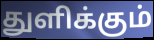
துளிக்கும்